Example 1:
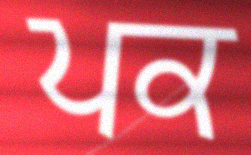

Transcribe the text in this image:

ਪਕ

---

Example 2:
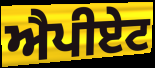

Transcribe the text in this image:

ਐਪੀਏਟ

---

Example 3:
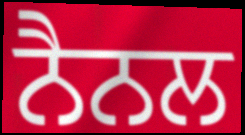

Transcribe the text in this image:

ਨੈਨਲ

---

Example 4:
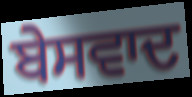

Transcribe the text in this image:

ਬੇਸਵਾਦ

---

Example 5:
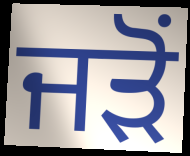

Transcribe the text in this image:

ਜੜੋਂ